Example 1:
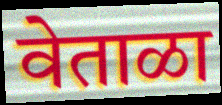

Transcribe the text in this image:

वेताळा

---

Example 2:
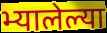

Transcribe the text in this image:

भ्यालेल्या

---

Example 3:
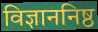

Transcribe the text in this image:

विज्ञाननिष्ठ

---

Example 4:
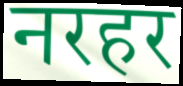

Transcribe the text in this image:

नरहर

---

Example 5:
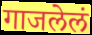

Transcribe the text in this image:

गाजलेलं